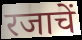
रजाचें